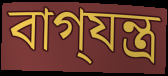
বাগ্‌যন্ত্র